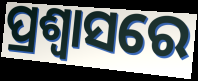
ପ୍ରଶ୍ବାସରେ